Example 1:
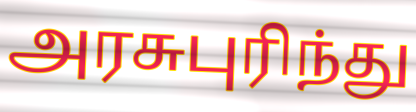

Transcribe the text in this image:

அரசுபுரிந்து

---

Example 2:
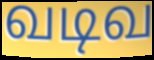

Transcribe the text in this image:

வடிவ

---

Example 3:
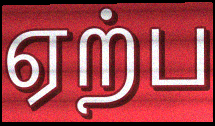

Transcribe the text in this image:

ஏற்ப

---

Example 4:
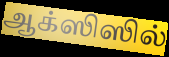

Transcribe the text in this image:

ஆக்ஸிஸில்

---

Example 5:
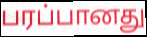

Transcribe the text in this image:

பரப்பானது